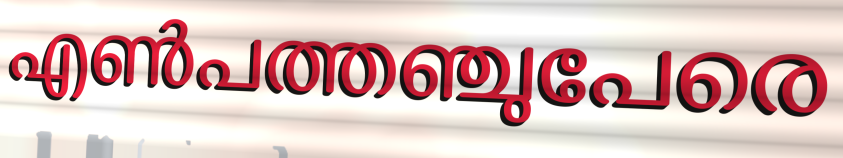
എൺപത്തഞ്ചുപേരെ